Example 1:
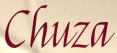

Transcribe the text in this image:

Chuza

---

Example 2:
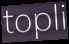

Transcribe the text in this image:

topli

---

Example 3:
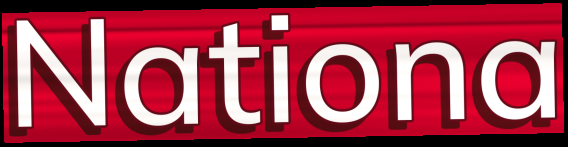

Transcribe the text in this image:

Nationa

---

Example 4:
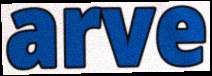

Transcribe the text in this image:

arve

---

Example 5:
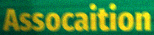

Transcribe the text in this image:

Assocaition